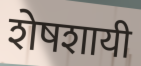
शेषशायी